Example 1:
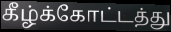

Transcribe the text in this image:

கீழ்க்கோட்டத்து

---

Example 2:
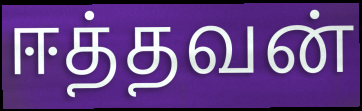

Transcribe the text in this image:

ஈத்தவன்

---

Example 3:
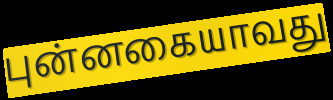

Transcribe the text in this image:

புன்னகையாவது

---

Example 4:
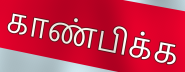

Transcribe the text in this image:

காண்பிக்க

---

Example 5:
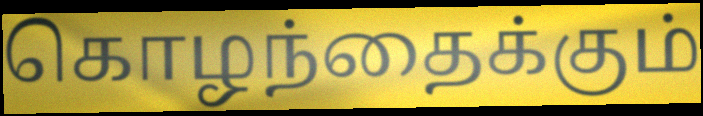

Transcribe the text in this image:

கொழந்தைக்கும்